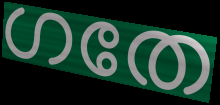
ഗതേ